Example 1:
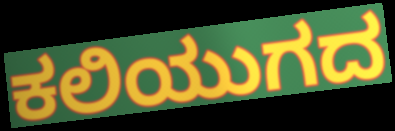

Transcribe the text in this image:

ಕಲಿಯುಗದ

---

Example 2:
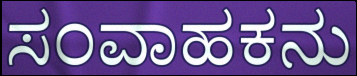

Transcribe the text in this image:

ಸಂವಾಹಕನು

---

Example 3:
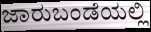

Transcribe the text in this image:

ಜಾರುಬಂಡೆಯಲ್ಲಿ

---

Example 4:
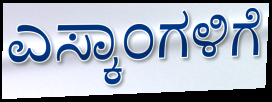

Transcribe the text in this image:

ಎಸ್ಕಾಂಗಳಿಗೆ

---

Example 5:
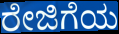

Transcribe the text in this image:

ರೇಜಿಗೆಯ